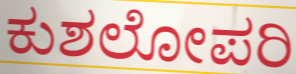
ಕುಶಲೋಪರಿ